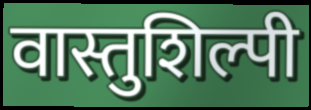
वास्तुशिल्पी